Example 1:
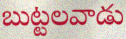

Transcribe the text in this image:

బుట్టలవాడు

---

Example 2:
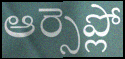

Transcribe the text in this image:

ఆర్సెప్లో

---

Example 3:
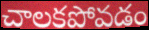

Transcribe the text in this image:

చాలకపోవడం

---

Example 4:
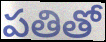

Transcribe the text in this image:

పతితో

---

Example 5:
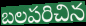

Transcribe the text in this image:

బలపరిచిన